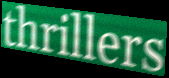
thrillers